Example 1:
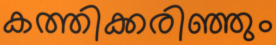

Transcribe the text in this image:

കത്തിക്കരിഞ്ഞും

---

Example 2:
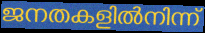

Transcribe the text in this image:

ജനതകളിൽനിന്ന്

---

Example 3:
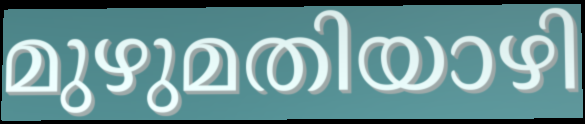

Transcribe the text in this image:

മുഴുമതിയാഴി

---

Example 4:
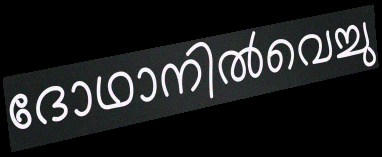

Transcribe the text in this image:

ദോഥാനിൽവെച്ചു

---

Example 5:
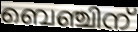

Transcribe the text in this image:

ബെഞ്ചിന്